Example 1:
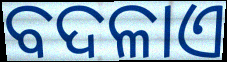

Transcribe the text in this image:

ବଦଳାଏ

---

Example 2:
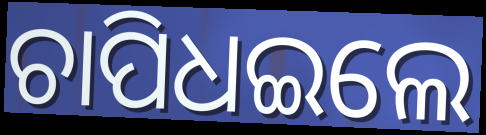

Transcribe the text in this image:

ଚାପିଧଇଲେ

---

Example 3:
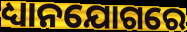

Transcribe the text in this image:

ଧ୍ୟାନଯୋଗରେ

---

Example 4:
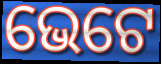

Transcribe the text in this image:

ଭେଟେ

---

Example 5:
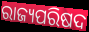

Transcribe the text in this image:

ରାଜ୍ୟପରିଷଦ